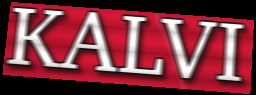
KALVI